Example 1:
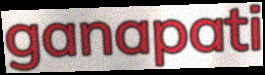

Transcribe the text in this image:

ganapati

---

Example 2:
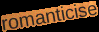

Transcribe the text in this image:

romanticise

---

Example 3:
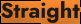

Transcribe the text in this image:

Straight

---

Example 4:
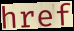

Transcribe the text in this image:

href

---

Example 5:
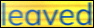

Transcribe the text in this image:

leaved